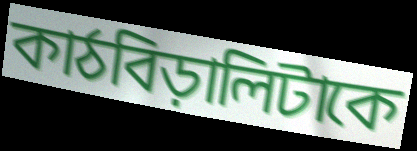
কাঠবিড়ালিটাকে